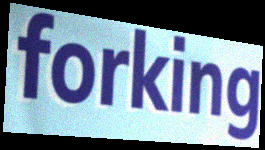
forking